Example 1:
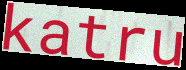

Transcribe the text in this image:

katru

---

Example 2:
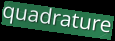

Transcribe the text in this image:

quadrature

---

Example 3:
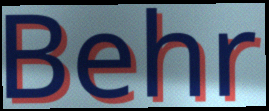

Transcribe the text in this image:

Behr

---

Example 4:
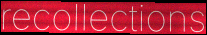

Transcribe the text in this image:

recollections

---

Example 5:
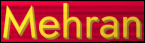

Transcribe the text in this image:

Mehran